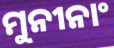
ମୁନୀନାଂ